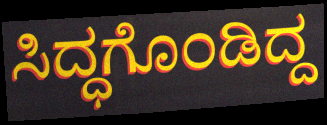
ಸಿದ್ಧಗೊಂಡಿದ್ದ